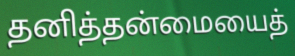
தனித்தன்மையைத்